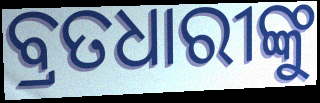
ବ୍ରତଧାରୀଙ୍କୁ